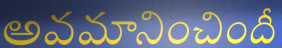
అవమానించిందీ